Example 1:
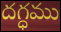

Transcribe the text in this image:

దగ్ధము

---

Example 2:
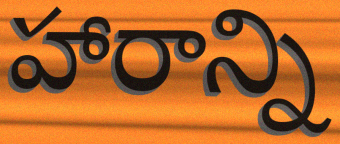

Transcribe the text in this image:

హారాన్ని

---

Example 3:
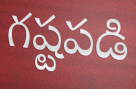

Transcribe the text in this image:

గష్టపడి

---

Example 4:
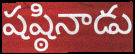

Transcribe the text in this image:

షష్ఠినాడు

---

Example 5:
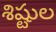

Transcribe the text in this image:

శిష్టుల